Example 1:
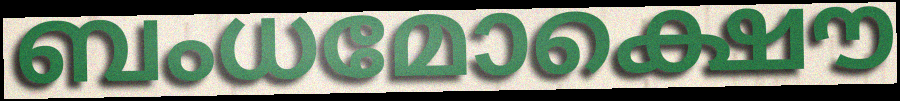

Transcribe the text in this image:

ബംധമോക്ഷൌ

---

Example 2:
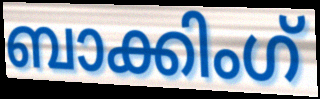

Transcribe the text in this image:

ബാക്കിംഗ്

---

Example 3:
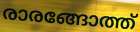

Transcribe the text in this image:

രാരങ്ങോത്ത്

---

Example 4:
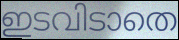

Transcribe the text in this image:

ഇടവിടാതെ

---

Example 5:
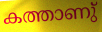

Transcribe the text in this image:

കത്താണു്